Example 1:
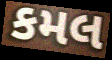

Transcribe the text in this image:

કમલ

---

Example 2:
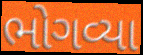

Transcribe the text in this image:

ભોગવ્યા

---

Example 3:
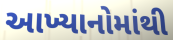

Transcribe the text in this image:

આખ્યાનોમાંથી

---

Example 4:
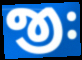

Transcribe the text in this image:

જીઃ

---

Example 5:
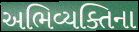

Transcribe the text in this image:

અભિવ્યક્તિના